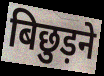
बिछुड़ने